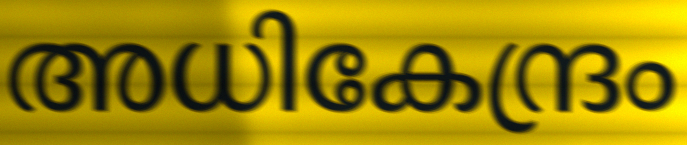
അധികേന്ദ്രം